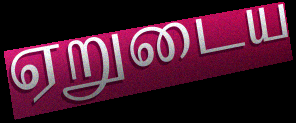
ஏறுடைய